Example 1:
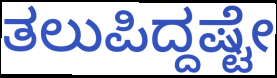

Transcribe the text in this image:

ತಲುಪಿದ್ದಷ್ಟೇ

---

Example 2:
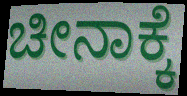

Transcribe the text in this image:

ಚೀನಾಕ್ಕೆ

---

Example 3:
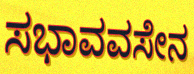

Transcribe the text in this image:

ಸಭಾವವಸೇನ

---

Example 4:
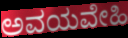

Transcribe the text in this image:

ಅವಯವೇಹಿ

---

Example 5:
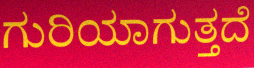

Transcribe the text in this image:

ಗುರಿಯಾಗುತ್ತದೆ